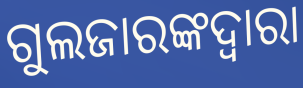
ଗୁଲଜାରଙ୍କଦ୍ୱାରା